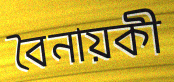
বৈনায়কী